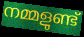
നമ്മളുണ്ട്